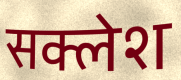
सक्लेश